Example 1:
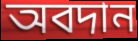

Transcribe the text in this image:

অবদান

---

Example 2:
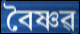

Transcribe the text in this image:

বৈষ্ণৱ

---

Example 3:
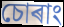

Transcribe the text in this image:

চোৰাং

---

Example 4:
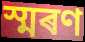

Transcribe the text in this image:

স্মৰণ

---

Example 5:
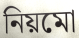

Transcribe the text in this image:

নিয়মো